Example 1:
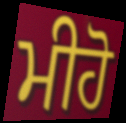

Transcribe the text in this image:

ਮੀਹੋ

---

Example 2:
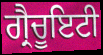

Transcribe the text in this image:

ਗ੍ਰੈਚੂਇਟੀ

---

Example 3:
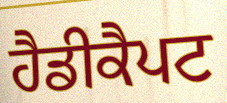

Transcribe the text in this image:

ਹੈਡੀਕੈਪਟ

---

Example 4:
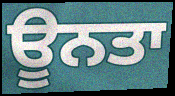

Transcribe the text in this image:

ਊਨਤਾ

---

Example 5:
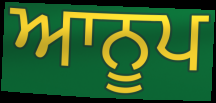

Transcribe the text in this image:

ਆਨੂਪ